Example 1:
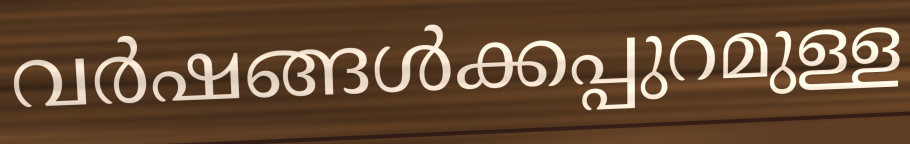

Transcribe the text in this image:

വർഷങ്ങൾക്കപ്പുറമുള്ള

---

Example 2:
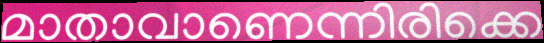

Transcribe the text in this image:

മാതാവാണെന്നിരിക്കെ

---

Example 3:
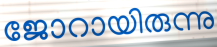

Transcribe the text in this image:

ജോറായിരുന്നു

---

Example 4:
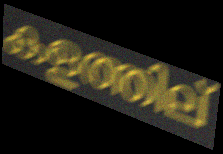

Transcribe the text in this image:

കളത്തില്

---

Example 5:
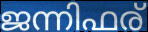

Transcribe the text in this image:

ജന്നിഫര്